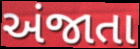
અંજાતા